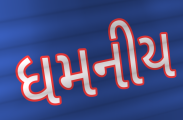
ધમનીય